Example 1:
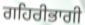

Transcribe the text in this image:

ਗਹਿਰੀਭਾਗੀ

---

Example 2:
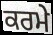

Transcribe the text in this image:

ਕਰਮੇ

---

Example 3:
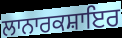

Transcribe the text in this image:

ਲਾਨਾਰਕਸ਼ਾਇਰ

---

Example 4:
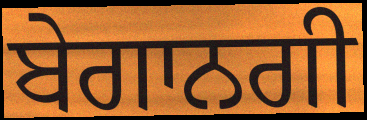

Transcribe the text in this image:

ਬੇਗਾਨਗੀ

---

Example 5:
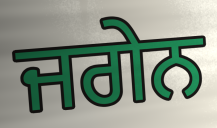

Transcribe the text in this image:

ਜਗੇਨ